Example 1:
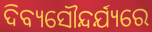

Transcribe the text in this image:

ଦିବ୍ୟସୌନ୍ଦର୍ଯ୍ୟରେ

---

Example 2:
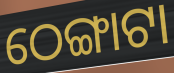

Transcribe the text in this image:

ଠେଙ୍ଗାଟା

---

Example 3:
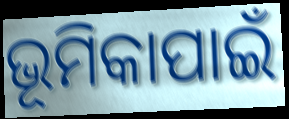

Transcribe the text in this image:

ଭୂମିକାପାଇଁ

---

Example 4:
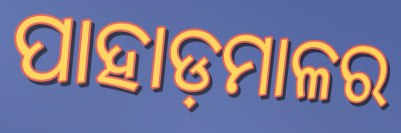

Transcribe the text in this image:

ପାହାଡ଼ମାଳର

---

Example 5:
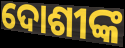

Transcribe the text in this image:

ଦୋଶୀଙ୍କ